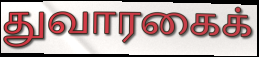
துவாரகைக்